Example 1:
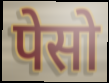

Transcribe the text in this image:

पेसो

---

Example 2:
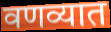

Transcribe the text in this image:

वणव्यात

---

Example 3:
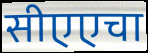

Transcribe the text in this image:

सीएएचा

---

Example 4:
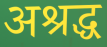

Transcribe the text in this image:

अश्रद्ध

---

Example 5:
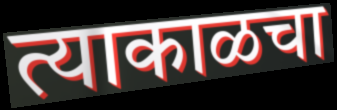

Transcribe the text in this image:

त्याकाळचा